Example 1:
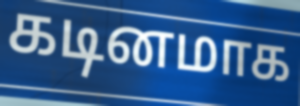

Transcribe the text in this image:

கடினமாக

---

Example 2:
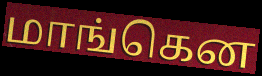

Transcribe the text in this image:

மாங்கென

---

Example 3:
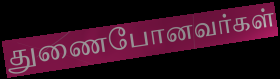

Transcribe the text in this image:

துணைபோனவர்கள்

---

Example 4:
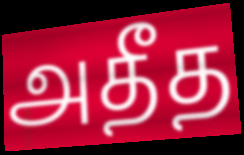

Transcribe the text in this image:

அதீத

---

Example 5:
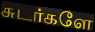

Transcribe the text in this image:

சுடர்களே